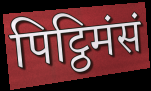
पिट्ठिमंसं